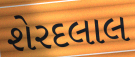
શેરદલાલ